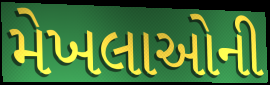
મેખલાઓની